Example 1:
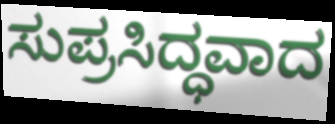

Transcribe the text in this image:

ಸುಪ್ರಸಿದ್ಧವಾದ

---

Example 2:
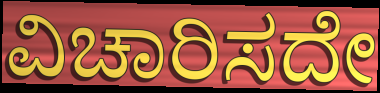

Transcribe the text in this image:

ವಿಚಾರಿಸದೇ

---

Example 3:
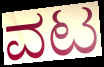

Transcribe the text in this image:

ವಟ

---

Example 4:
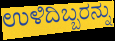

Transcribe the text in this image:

ಉಳಿದಿಬ್ಬರನ್ನು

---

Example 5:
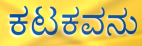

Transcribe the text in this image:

ಕಟಕವನು